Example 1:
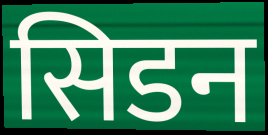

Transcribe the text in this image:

सिडन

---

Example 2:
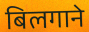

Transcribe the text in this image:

बिलगाने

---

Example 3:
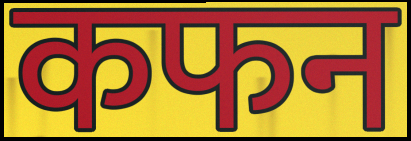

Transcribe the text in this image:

कफन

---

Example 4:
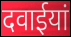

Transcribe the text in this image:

दवाईयां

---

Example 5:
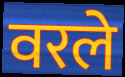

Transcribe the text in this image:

वरले